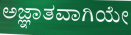
ಅಜ್ಞಾತವಾಗಿಯೇ